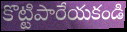
కొట్టిపారేయకండి